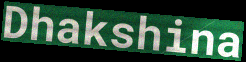
Dhakshina